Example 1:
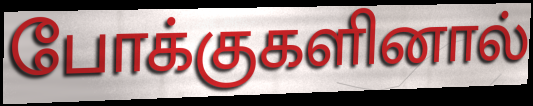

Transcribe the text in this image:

போக்குகளினால்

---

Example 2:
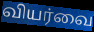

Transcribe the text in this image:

வியர்வை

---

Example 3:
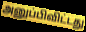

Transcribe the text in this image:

அனுப்பிவிட்டது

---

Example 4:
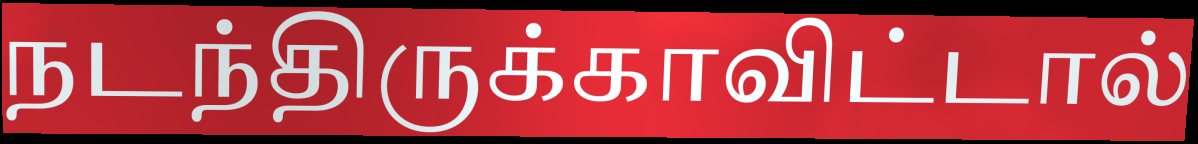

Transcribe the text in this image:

நடந்திருக்காவிட்டால்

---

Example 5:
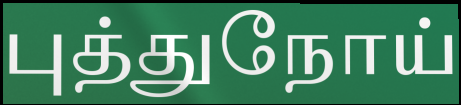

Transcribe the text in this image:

புத்துநோய்